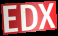
EDX